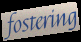
fostering